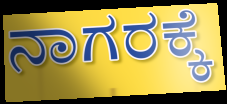
ನಾಗರಕ್ಕೆ